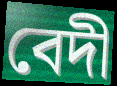
বেদী